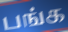
பங்க